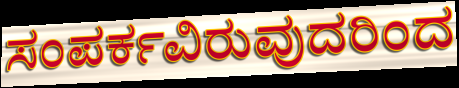
ಸಂಪರ್ಕವಿರುವುದರಿಂದ